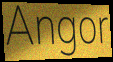
Angor